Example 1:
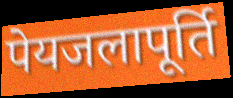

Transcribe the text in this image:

पेयजलापूर्ति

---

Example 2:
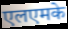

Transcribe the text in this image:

एलएमके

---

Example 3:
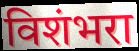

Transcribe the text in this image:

विशंभरा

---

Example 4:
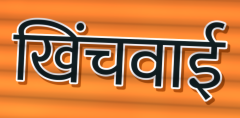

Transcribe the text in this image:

खिंचवाई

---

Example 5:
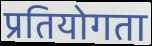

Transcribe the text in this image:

प्रतियोगता